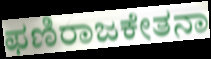
ಫಣಿರಾಜಕೇತನಾ